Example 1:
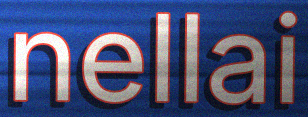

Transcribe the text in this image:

nellai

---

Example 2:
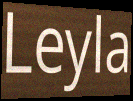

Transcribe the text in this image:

Leyla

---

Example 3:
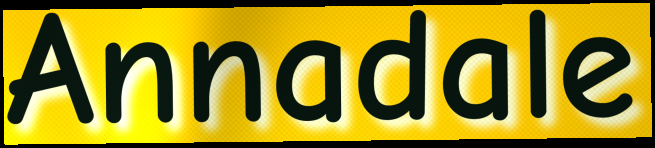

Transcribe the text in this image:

Annadale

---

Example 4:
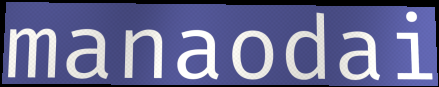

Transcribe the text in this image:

manaodai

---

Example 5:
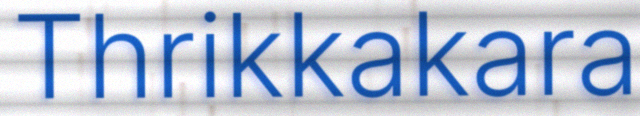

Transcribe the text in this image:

Thrikkakara